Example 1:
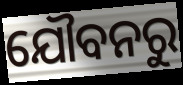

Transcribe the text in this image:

ଯୌବନରୁ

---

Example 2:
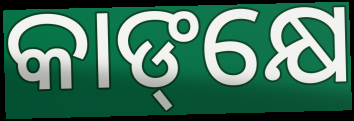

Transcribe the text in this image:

କାଙ୍‌କ୍ଷେ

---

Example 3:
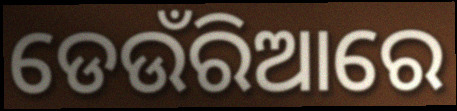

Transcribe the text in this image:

ଡେଉଁରିଆରେ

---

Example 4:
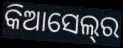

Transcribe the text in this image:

କିଆସେଲ୍‌ର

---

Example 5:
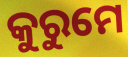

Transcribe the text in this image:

କୁରୁମେ